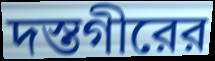
দস্তগীরের